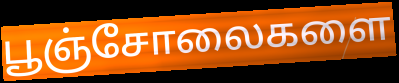
பூஞ்சோலைகளை